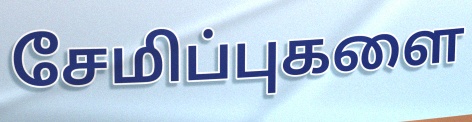
சேமிப்புகளை